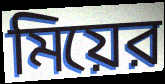
মিয়ের